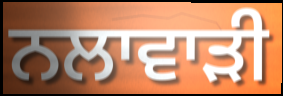
ਨਲਾਵਾੜੀ